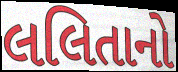
લલિતાનો